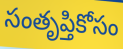
సంతృప్తికోసం